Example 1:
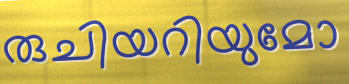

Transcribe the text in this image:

രുചിയറിയുമോ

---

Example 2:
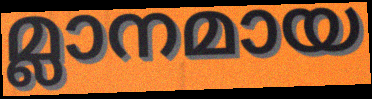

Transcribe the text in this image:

മ്ലാനമായ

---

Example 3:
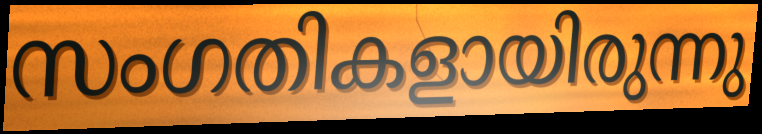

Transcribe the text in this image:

സംഗതികളായിരുന്നു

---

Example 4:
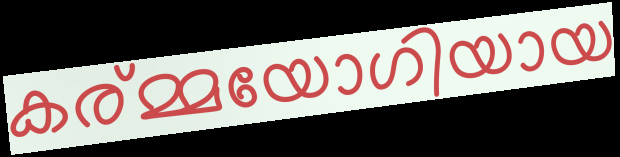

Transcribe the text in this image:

കര്മ്മയോഗിയായ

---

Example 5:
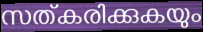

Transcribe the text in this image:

സത്കരിക്കുകയും